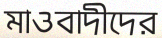
মাওবাদীদের